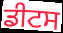
ਡੀਟਸ